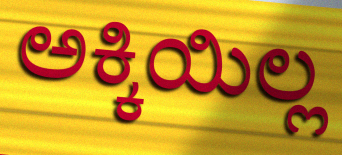
ಅಕ್ಕಿಯಿಲ್ಲ